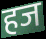
हज